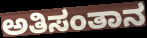
ಅತಿಸಂತಾನ